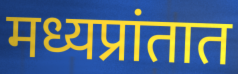
मध्यप्रांतात